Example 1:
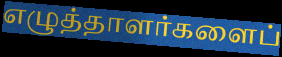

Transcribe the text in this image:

எழுத்தாளர்களைப்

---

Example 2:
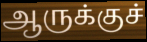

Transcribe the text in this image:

ஆருக்குச்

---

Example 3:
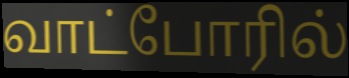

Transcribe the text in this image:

வாட்போரில்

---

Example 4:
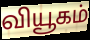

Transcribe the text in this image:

வியூகம்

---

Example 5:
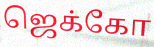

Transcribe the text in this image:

ஜெக்கோ